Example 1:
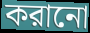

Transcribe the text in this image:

করানো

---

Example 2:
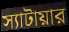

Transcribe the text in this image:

স্যাটায়ার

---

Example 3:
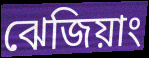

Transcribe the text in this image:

ঝেজিয়াং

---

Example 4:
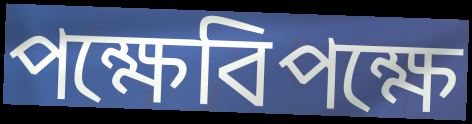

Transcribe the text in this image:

পক্ষেবিপক্ষে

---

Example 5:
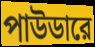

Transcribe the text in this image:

পাউডারে